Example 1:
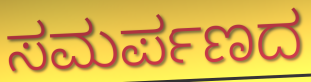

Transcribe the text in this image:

ಸಮರ್ಪಣದ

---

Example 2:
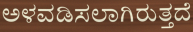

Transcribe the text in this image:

ಅಳವಡಿಸಲಾಗಿರುತ್ತದೆ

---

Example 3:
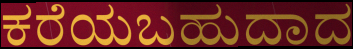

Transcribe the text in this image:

ಕರೆಯಬಹುದಾದ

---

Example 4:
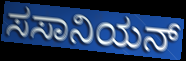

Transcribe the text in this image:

ಸಸಾನಿಯನ್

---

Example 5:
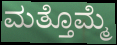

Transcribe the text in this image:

ಮತ್ತೊಮ್ಮೆ